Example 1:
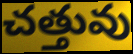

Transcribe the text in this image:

చత్తువు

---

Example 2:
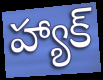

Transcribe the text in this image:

హ్యాక్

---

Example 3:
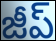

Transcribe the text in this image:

జీప్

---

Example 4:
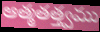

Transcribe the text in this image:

ఆత్మతత్త్వము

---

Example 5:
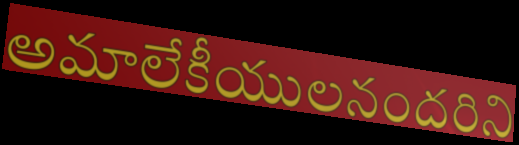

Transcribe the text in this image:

అమాలేకీయులనందరిని